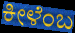
ಕೀಳೆಂಬ